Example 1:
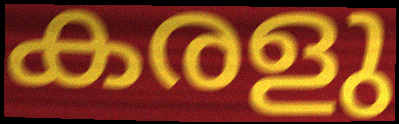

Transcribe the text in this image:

കരളു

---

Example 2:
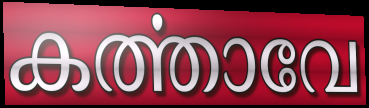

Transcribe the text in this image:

കൎത്താവേ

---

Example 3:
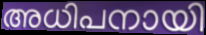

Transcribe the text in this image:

അധിപനായി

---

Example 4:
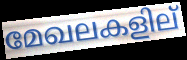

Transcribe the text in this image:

മേഖലകളില്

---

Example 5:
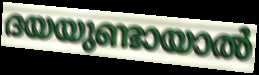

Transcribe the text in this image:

ദയയുണ്ടായാൽ